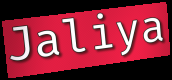
Jaliya